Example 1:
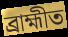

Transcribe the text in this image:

ব্ৰাহ্মীত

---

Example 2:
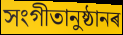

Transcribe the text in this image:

সংগীতানুষ্ঠানৰ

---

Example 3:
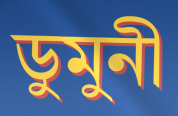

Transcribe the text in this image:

ডুমুনী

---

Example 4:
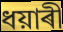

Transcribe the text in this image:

ধয়াৰী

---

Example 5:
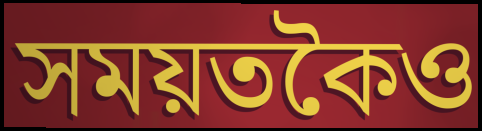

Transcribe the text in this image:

সময়তকৈও